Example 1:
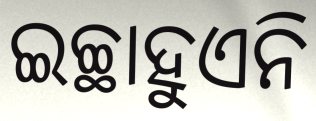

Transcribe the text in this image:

ଇଚ୍ଛାହୁଏନି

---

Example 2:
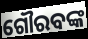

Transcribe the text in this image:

ଗୌରବଙ୍କ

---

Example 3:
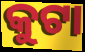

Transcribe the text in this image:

କୁଟା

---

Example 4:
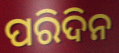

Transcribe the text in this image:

ପରିଦିନ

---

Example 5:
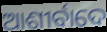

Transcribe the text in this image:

ଆଶୀର୍ବାଦେ